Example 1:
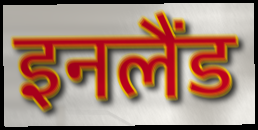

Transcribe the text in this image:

इनलैंड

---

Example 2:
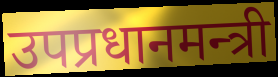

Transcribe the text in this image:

उपप्रधानमन्त्री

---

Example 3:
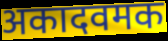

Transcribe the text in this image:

अकादवमक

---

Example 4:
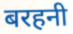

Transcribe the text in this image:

बरहनी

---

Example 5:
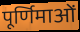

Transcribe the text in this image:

पूर्णिमाओं